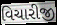
વિચારીજી